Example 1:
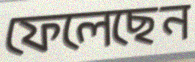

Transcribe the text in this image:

ফেলেছেন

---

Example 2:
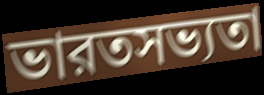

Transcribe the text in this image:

ভারতসভ্যতা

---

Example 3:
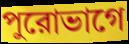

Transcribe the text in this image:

পুরোভাগে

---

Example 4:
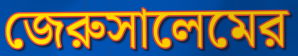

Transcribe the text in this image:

জেরুসালেমের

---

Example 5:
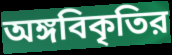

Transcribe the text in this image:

অঙ্গবিকৃতির